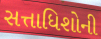
સત્તાધિશોની